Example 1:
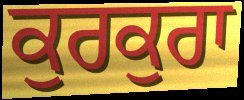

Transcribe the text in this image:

ਕੁਰਕੁਰਾ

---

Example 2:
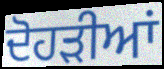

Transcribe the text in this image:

ਦੋਹੜੀਆਂ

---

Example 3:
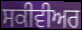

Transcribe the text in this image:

ਸਕੀਵੀਅਰ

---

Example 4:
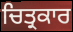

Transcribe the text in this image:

ਚਿਤ੍ਰਕਾਰ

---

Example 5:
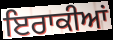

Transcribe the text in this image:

ਇਰਾਕੀਆਂ